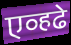
एव्हढे